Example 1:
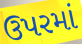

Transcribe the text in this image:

ઉપરમાં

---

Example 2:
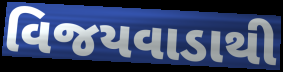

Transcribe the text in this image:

વિજયવાડાથી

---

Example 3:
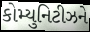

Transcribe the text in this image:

કોમ્યુનિટીઝને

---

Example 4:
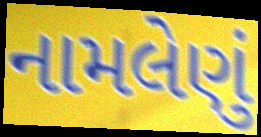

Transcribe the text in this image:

નામલેણું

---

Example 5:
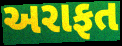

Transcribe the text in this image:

અરાફત